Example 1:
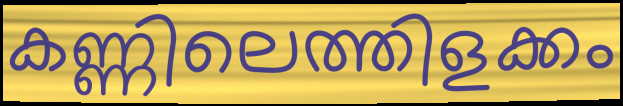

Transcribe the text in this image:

കണ്ണിലെത്തിളക്കം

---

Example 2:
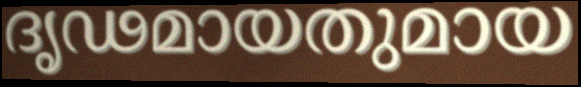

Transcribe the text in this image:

ദൃഢമായതുമായ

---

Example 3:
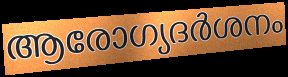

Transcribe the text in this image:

ആരോഗ്യദർശനം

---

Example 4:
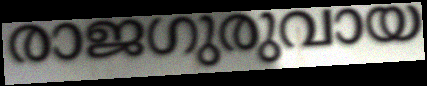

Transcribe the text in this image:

രാജഗുരുവായ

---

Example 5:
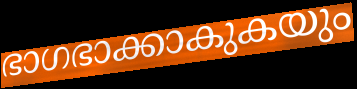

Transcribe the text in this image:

ഭാഗഭാക്കാകുകയും